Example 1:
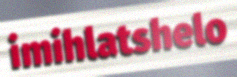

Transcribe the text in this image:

imihlatshelo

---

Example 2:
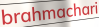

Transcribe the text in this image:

brahmachari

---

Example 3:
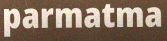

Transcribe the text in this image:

parmatma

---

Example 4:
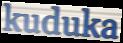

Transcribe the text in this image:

kuduka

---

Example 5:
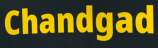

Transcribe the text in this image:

Chandgad